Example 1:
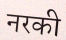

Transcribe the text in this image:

नरकी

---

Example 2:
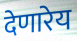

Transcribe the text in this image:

देणारेय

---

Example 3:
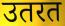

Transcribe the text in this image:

उतरत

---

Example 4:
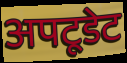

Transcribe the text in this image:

अपटूडेट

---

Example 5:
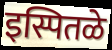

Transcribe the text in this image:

इस्पितळे